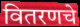
वितरणचे